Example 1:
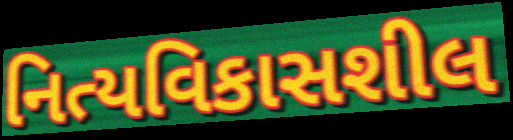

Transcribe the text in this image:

નિત્યવિકાસશીલ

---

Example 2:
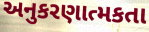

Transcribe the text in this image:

અનુકરણાત્મકતા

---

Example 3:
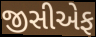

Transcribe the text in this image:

જીસીએફ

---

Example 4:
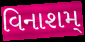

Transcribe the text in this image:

વિનાશમ્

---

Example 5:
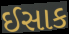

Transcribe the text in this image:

ઈસાક